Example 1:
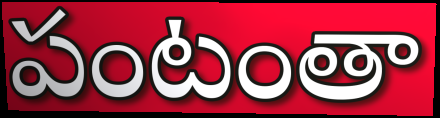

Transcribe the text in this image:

పంటంతా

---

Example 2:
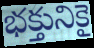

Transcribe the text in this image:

భక్తునికై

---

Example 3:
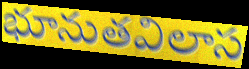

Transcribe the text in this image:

భూనుతవిలాస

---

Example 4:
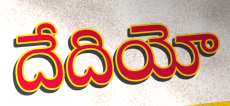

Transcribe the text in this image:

దేదియో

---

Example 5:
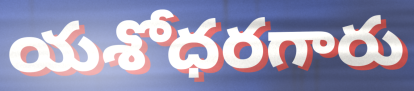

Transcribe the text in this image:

యశోధరగారు